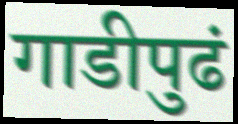
गाडीपुढं